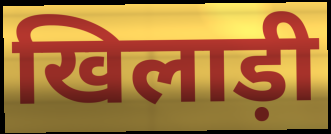
खिलाड़ी